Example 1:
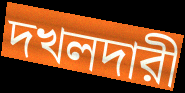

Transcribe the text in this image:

দখলদারী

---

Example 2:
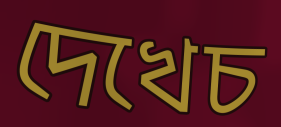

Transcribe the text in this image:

দেখেচ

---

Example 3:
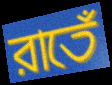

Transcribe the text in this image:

রাতেঁ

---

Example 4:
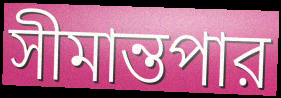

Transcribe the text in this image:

সীমান্তপার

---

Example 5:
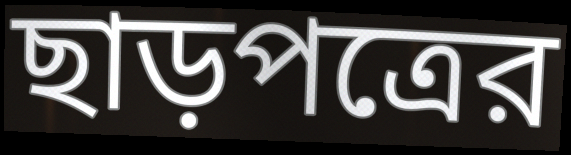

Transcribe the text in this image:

ছাড়পত্রের